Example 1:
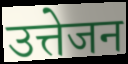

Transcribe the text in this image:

उत्तेजन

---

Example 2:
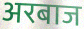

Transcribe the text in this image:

अरबाज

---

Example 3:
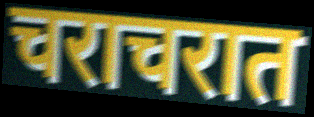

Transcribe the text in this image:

चराचरात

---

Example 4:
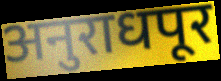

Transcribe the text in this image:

अनुराधपूर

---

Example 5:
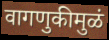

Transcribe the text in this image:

वागणुकीमुळं